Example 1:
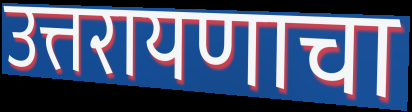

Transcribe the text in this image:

उत्तरायणाचा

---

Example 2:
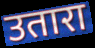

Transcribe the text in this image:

उतारा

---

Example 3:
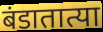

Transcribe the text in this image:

बंडातात्या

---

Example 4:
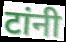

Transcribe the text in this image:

टांनी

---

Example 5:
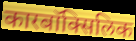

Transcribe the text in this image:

कारबॉक्सिलिक